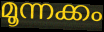
മൂന്നക്കം